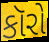
કૉરો